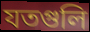
যতগুলি